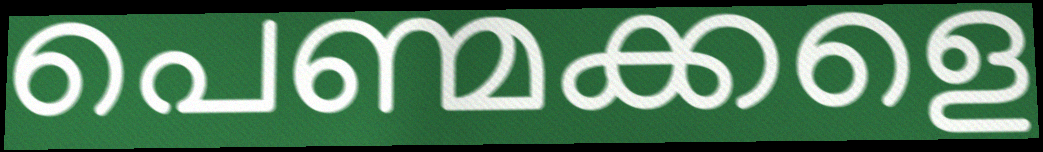
പെണ്മക്കളെ